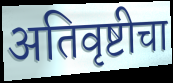
अतिवृष्टीचा